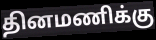
தினமணிக்கு